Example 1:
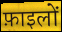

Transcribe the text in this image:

फ़ाइलों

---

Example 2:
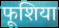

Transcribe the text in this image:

फूशिया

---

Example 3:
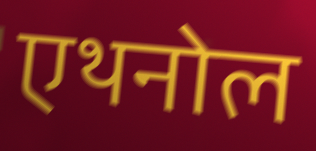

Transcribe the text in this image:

एथनोल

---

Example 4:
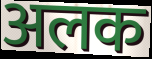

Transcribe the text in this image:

अलक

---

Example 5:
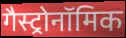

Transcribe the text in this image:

गैस्ट्रोनॉमिक